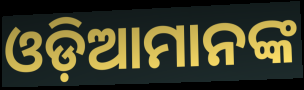
ଓଡ଼ିଆମାନଙ୍କ